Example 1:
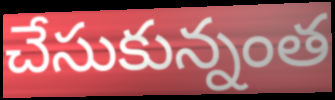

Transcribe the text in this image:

చేసుకున్నంత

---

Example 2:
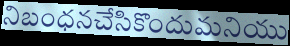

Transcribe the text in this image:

నిబంధనచేసికొందుమనియు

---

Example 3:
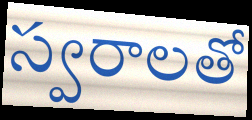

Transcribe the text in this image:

స్వరాలతో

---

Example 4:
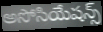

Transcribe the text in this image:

అసోసియేషన్స్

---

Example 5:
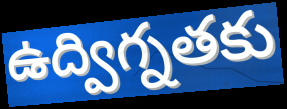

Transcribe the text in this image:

ఉద్విగ్నతకు